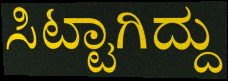
ಸಿಟ್ಟಾಗಿದ್ದು